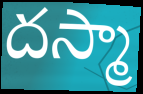
దస్మా